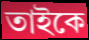
তাইকে